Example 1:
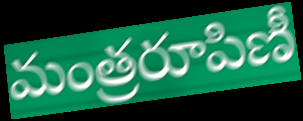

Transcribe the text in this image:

మంత్రరూపిణీ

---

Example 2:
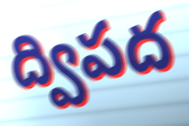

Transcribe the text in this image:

ద్విపద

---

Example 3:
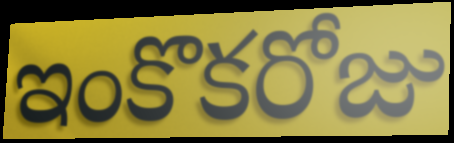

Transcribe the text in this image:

ఇంకొకరోజు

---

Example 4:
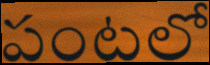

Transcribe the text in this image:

పంటలో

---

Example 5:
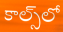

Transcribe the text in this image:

కాల్స్‌లో